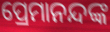
ପ୍ରେମାନନ୍ଦଙ୍କ